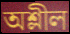
অশ্লীল